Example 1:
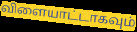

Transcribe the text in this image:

விளையாட்டாகவும்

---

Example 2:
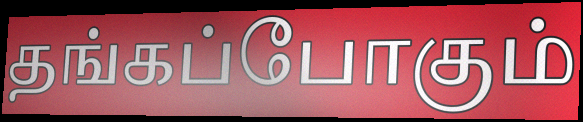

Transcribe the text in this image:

தங்கப்போகும்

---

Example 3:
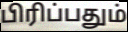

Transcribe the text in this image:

பிரிப்பதும்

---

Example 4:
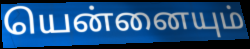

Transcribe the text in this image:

யென்னையும்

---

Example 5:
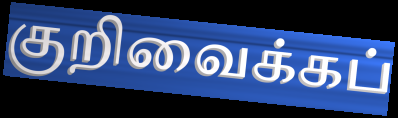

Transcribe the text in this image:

குறிவைக்கப்